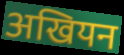
अखियन